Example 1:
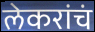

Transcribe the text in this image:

लेकरांचं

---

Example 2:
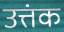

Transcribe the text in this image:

उत्तंक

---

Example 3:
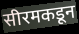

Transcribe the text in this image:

सीरमकडून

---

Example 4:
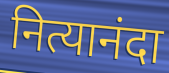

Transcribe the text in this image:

नित्यानंदा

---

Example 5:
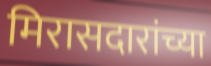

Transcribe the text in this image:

मिरासदारांच्या